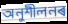
অনুশীলনৰ